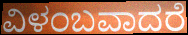
ವಿಳಂಬವಾದರೆ